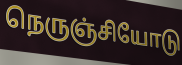
நெருஞ்சியோடு